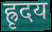
ह्रृदय